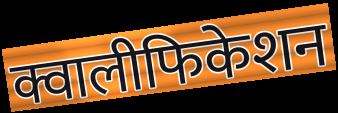
क्वालीफिकेशन